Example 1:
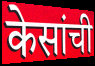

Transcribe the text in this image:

केसांची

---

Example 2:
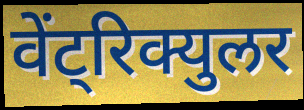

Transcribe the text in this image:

वेंट्रिक्युलर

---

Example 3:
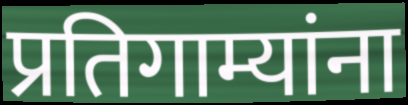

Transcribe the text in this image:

प्रतिगाम्यांना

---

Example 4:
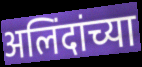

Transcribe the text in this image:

अलिंदांच्या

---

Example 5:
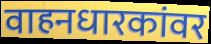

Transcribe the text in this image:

वाहनधारकांवर